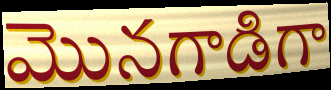
మొనగాడిగా